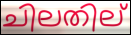
ചിലതില്